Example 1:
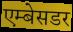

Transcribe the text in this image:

एम्बेसडर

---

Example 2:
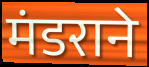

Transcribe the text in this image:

मंडराने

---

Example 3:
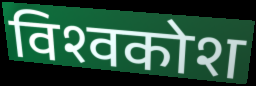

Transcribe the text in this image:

विश्वकोश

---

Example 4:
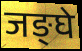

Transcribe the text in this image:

जङ्घे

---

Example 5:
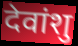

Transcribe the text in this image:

देवांशु